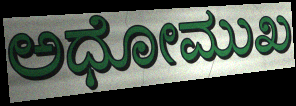
ಅಧೋಮುಖ